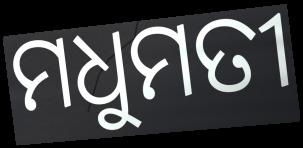
ମଧୁମତୀ